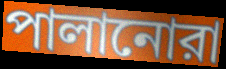
পালানোরা